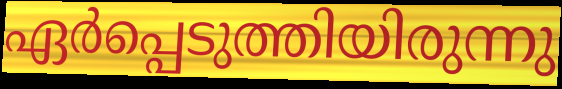
ഏർപ്പെടുത്തിയിരുന്നു